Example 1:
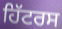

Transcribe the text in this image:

ਹਿੱਟਰਸ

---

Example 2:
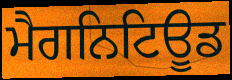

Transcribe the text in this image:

ਮੈਗਨਿਟਿਊਡ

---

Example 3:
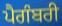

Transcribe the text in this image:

ਪੈਗੰਬਰੀ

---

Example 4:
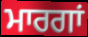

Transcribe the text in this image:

ਮਾਰਗਾਂ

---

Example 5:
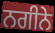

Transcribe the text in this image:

ਨਗੀਨੇ